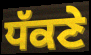
ਧੱਕਣੇ